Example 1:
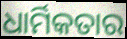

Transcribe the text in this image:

ଧାର୍ମିକତାର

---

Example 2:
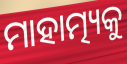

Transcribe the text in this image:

ମାହାତ୍ମ୍ୟକୁ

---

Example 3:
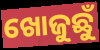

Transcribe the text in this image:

ଖୋଜୁଛୁଁ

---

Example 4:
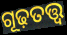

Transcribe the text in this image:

ଗୂଢ଼ତତ୍ତ୍ୱ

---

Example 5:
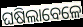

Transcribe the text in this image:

ଘଷିଲାବେଳେ